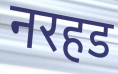
नरहड